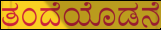
ತಂದೆಯೊಡನೆ